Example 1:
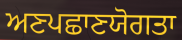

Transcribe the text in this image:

ਅਣਪਛਾਣਯੋਗਤਾ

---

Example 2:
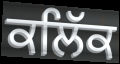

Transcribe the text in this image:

ਕਲਿੱਕ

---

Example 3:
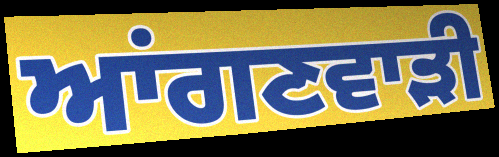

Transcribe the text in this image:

ਆਂਗਣਵਾੜੀ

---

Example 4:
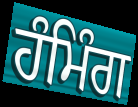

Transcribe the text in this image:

ਹੰਮਿੰਗ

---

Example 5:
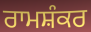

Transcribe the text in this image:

ਰਾਮਸ਼ੰਕਰ